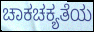
ಚಾಕಚಕ್ಯತೆಯ